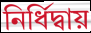
নির্ধিদ্বায়